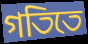
গতিতে